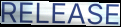
RELEASE